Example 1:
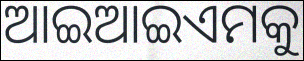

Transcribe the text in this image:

ଆଇଆଇଏମକୁ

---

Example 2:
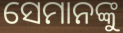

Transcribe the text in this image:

ସେମାନଙ୍କୁ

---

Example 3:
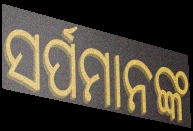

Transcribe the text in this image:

ସର୍ପମାନଙ୍କ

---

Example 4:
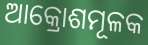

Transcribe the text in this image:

ଆକ୍ରୋଶମୂଳକ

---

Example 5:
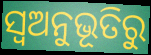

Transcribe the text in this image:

ସ୍ୱଅନୁଭୂତିରୁ